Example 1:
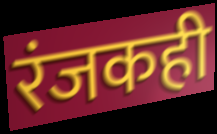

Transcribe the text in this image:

रंजकही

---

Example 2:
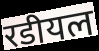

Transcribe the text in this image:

रडीयल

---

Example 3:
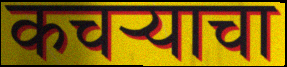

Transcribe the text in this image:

कचऱ्याचा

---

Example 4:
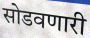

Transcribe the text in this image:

सोडवणारी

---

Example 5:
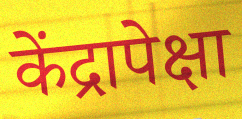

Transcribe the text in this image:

केंद्रापेक्षा